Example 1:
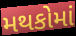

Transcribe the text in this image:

મથકોમાં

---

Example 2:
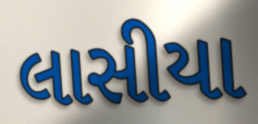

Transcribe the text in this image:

લાસીયા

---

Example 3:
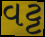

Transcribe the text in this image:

વટ્ટ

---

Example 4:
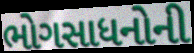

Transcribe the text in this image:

ભોગસાધનોની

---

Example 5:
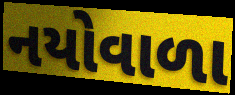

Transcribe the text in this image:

નયોવાળા